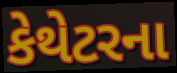
કેથેટરના